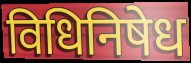
विधिनिषेध